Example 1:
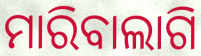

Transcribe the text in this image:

ମାରିବାଲାଗି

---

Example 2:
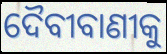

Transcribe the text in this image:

ଦୈବୀବାଣୀକୁ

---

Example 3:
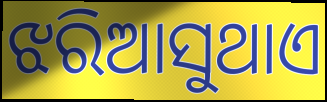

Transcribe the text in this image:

ଝରିଆସୁଥାଏ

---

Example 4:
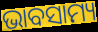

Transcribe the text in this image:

ଭାବସାମ୍ୟ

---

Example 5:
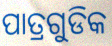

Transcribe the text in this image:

ପାତ୍ରଗୁଡିକ